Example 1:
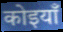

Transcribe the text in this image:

कोइयाँ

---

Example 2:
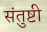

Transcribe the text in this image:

संतुष्टी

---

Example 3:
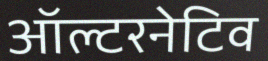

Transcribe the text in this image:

ऑल्टरनेटिव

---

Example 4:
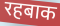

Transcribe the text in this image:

रहबाक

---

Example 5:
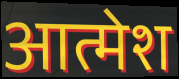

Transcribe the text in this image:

आत्मेश